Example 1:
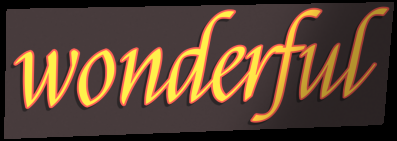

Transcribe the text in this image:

wonderful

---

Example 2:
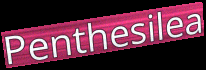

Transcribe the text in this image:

Penthesilea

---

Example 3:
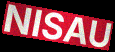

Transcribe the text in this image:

NISAU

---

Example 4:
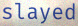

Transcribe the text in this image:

slayed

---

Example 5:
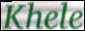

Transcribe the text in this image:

Khele